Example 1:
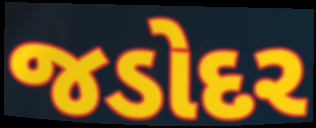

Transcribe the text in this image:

જડોદર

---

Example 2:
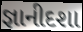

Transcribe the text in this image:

જ્ઞાનીદશા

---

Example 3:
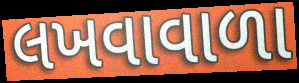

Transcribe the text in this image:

લખવાવાળા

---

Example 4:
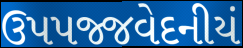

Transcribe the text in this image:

ઉપપજ્જવેદનીયં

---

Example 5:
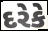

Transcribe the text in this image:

દરેકે